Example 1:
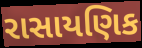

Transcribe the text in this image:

રાસાયણિક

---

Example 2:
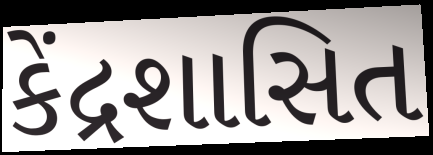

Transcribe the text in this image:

કેંદ્રશાસિત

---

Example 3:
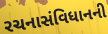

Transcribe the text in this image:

રચનાસંવિધાનની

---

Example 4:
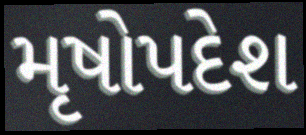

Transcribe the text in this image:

મૃષોપદેશ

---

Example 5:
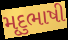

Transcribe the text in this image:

મૃદુભાષી